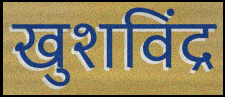
खुशविंद्र